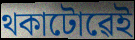
থকাটোৱেই